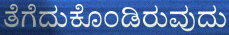
ತೆಗೆದುಕೊಂಡಿರುವುದು